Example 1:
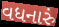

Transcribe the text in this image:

વધનારું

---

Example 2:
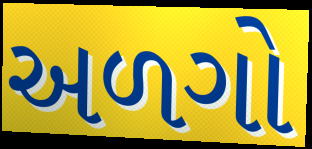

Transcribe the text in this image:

અળગો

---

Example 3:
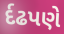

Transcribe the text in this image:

ર્દઢપણે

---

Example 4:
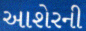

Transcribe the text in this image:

આશેરની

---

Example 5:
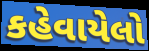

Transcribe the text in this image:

કહેવાયેલો